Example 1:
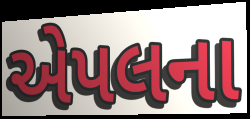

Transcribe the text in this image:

એપલના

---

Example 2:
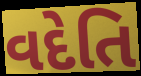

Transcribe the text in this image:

વદેતિ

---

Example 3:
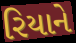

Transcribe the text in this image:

રિયાને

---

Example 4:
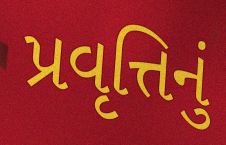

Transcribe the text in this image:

પ્રવૃત્તિનું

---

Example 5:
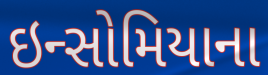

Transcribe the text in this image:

ઇન્સોમિયાના